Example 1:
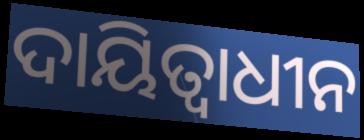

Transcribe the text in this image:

ଦାୟିତ୍ୱାଧୀନ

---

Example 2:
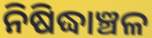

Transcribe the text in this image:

ନିଷିଦ୍ଧାଞ୍ଚଳ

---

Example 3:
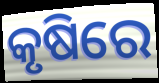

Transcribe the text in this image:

କୃଷିରେ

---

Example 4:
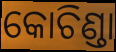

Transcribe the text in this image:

କୋଚିଣ୍ଡା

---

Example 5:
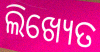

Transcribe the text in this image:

ଲିଖ୍ଯେତ